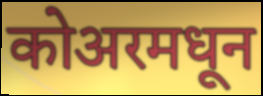
कोअरमधून